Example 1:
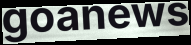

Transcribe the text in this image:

goanews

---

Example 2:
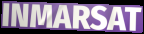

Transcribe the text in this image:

INMARSAT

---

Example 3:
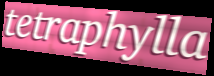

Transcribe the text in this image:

tetraphylla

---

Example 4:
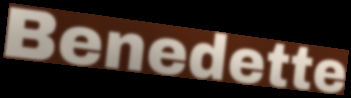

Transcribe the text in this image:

Benedette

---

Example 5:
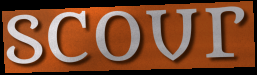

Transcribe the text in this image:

scour